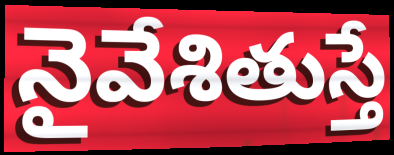
నైవేశితుస్తే